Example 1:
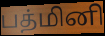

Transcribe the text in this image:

பத்மினி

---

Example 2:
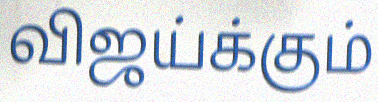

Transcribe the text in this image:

விஜய்க்கும்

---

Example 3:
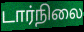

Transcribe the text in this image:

டார்நிலை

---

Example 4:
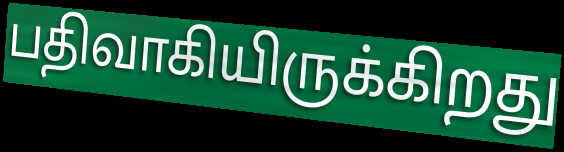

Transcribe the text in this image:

பதிவாகியிருக்கிறது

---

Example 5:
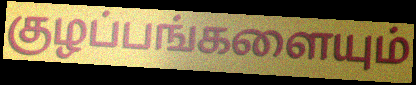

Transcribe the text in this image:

குழப்பங்களையும்